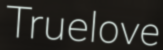
Truelove